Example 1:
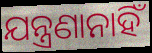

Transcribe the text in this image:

ଯନ୍ତ୍ରଣାନାହିଁ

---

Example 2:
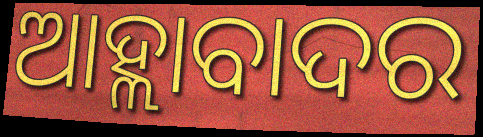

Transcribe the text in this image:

ଆହ୍ଲାବାଦର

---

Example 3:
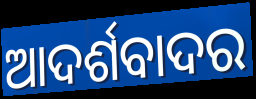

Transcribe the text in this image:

ଆଦର୍ଶବାଦର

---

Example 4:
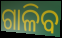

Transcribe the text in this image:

ଗାଳିବ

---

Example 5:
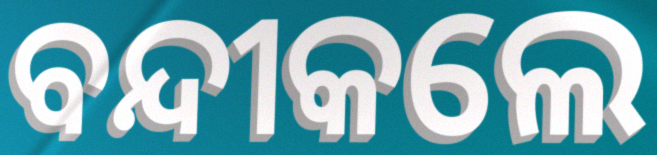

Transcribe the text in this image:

ବନ୍ଦୀକଲେ